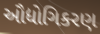
ઔદ્યોગિકરણ